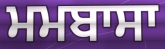
ਮਮਬਾਸਾ